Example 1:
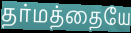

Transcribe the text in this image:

தர்மத்தையே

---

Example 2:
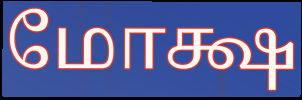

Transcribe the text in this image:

மோக்ஷ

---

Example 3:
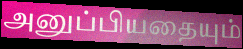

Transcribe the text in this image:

அனுப்பியதையும்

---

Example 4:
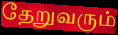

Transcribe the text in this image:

தேறுவரும்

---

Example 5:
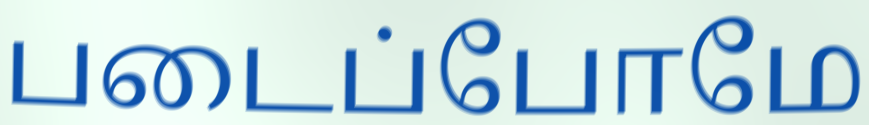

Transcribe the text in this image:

படைப்போமே